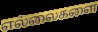
எல்லைகளை